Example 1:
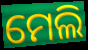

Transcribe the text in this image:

ମେଲି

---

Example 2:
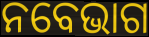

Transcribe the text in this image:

ନବେଭାଗ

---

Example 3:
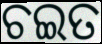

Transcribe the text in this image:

ଚଇତ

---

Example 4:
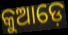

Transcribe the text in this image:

କୁଆଡ଼େ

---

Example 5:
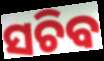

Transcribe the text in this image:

ସଚିବ